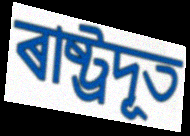
ৰাষ্ট্ৰদূত